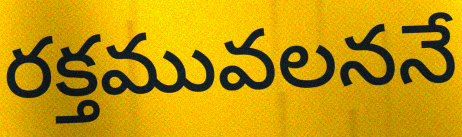
రక్తమువలననే